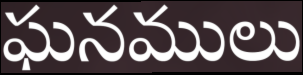
ఘనములు